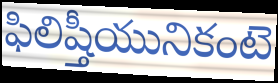
ఫిలిష్తీయునికంటె